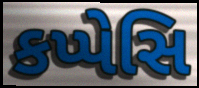
કપ્પેસિ